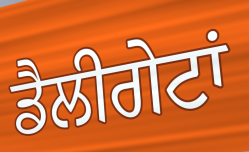
ਡੈਲੀਗੇਟਾਂ